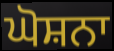
ਘੋਸ਼ਨਾ